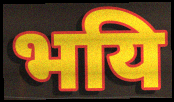
भयि